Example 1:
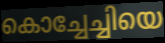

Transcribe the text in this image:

കൊച്ചേച്ചിയെ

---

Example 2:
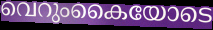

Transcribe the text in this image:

വെറുംകൈയോടെ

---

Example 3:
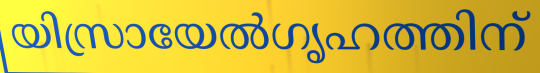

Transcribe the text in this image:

യിസ്രായേൽഗൃഹത്തിന്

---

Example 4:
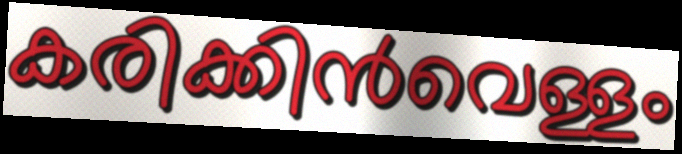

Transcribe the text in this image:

കരിക്കിൻവെള്ളം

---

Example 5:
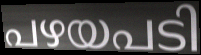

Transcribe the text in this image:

പഴയപടി